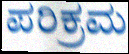
ಪರಿಕ್ರಮ